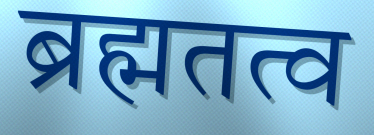
ब्रह्मतत्व